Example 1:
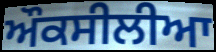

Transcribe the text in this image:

ਔਕਸੀਲੀਆ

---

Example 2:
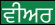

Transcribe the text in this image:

ਵੀਅਰ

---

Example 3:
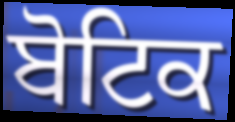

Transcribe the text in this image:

ਬੋਟਿਕ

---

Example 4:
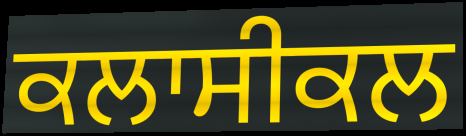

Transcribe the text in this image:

ਕਲਾਸੀਕਲ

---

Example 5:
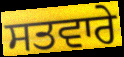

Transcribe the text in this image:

ਸਤਵਾਰੇ